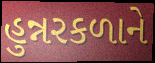
હુન્નરકળાને